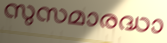
സുസമാരദ്ധാ